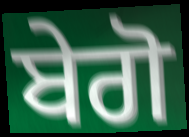
ਬੇਗੋ